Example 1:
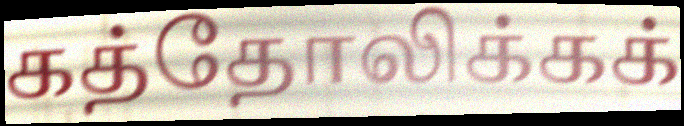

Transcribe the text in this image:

கத்தோலிக்கக்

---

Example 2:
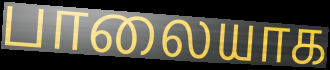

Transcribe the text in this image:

பாலையாக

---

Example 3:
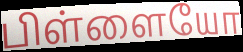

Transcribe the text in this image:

பிள்ளையோ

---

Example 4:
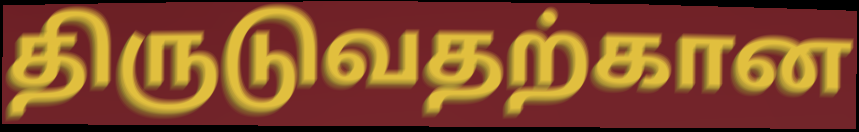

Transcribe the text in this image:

திருடுவதற்கான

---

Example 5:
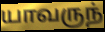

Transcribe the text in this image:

யாவருந்